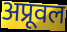
अप्रूवल